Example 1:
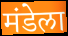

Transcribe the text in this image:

मंडेला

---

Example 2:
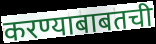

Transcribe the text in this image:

करण्याबाबतची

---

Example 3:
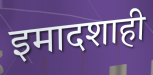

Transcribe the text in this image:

इमादशाही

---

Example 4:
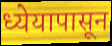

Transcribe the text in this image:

ध्येयापासून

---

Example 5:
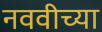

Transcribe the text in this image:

नववीच्या